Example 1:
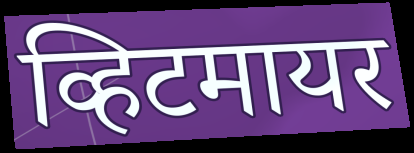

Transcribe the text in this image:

व्हिटमायर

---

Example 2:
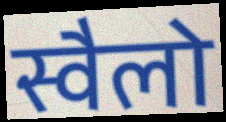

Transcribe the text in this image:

स्वैलो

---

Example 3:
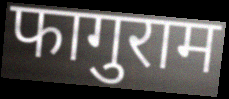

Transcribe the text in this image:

फागुराम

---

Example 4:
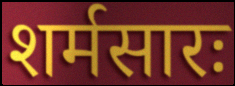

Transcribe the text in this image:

शर्मसारः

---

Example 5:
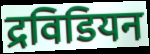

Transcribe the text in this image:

द्रविडियन